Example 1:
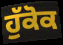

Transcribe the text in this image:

ਹੁੱਕੋਕ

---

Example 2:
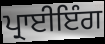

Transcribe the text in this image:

ਪ੍ਰਾਈਇੰਗ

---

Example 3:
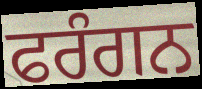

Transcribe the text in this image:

ਫਰੰਗਨ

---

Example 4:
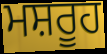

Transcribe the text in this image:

ਮਸ਼ਰੂਹ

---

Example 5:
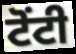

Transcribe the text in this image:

ਟੋਂਟੀ